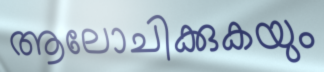
ആലോചിക്കുകയും